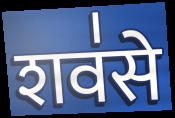
शव॑से